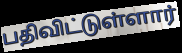
பதிவிட்டுள்ளார்